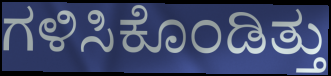
ಗಳಿಸಿಕೊಂಡಿತ್ತು